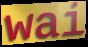
wai